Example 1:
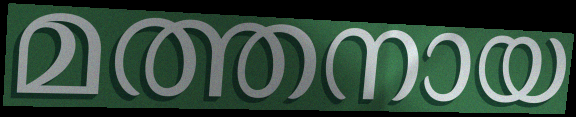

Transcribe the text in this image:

മത്തനായ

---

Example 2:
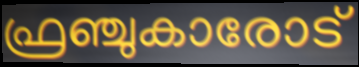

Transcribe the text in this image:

ഫ്രഞ്ചുകാരോട്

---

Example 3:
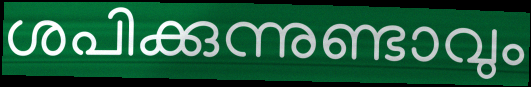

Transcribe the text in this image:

ശപിക്കുന്നുണ്ടാവും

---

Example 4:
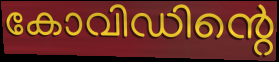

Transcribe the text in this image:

കോവിഡിന്റെ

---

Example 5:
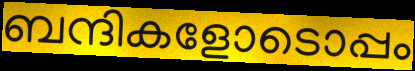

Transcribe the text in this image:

ബന്ദികളോടൊപ്പം